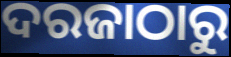
ଦରଜାଠାରୁ